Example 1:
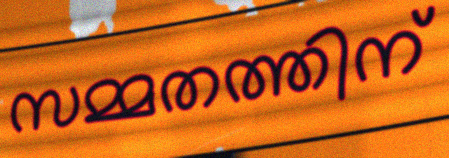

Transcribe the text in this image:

സമ്മതത്തിന്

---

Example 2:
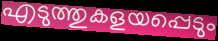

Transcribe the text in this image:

എടുത്തുകളയപ്പെടും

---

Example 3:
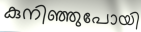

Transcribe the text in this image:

കുനിഞ്ഞുപോയി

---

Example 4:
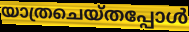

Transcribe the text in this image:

യാത്രചെയ്തപ്പോൾ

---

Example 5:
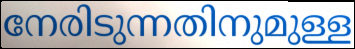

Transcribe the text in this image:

നേരിടുന്നതിനുമുള്ള